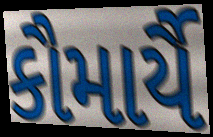
કૌમાર્યૈ